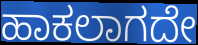
ಹಾಕಲಾಗದೇ